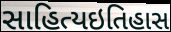
સાહિત્યઇતિહાસ